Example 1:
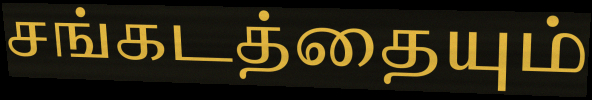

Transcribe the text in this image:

சங்கடத்தையும்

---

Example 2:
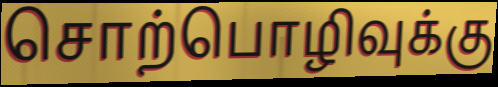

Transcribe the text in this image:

சொற்பொழிவுக்கு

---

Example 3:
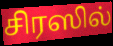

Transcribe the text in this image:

சிரஸில்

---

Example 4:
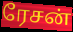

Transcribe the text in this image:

ரேசன்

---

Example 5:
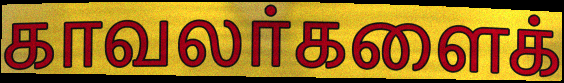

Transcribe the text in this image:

காவலர்களைக்